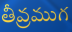
తీవ్రముగ